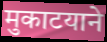
मुकाटयाने